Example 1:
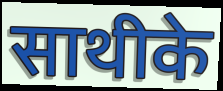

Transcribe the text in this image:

साथीके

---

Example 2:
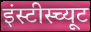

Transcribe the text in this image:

इंस्टीस्च्यूट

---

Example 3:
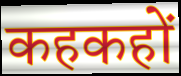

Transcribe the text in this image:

कहकहों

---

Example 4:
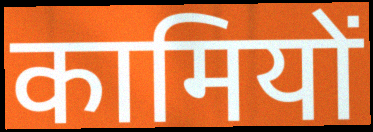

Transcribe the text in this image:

कामियों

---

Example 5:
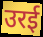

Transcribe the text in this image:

उरई